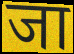
जा